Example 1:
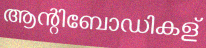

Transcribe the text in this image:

ആന്റിബോഡികള്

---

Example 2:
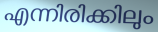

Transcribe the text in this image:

എന്നിരിക്കിലും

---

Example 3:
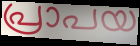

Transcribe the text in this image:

പ്രാപയ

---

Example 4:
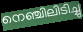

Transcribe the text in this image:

നെഞ്ചിലിടിച്ചു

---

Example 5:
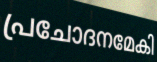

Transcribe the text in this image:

പ്രചോദനമേകി